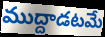
ముద్దాడటమే